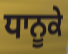
ਧਾਨੂਕੇ